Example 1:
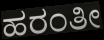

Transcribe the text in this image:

ಹರಂತೀ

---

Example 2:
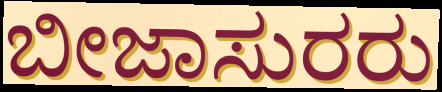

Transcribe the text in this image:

ಬೀಜಾಸುರರು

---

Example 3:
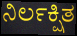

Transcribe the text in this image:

ನಿರ್ಲಕ್ಷಿತ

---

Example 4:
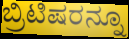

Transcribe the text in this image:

ಬ್ರಿಟಿಷರನ್ನೂ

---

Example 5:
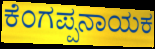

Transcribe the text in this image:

ಕೆಂಗಪ್ಪನಾಯಕ